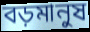
বড়মানুষ